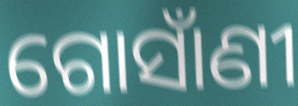
ଗୋସାଁଣୀ